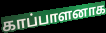
காப்பாளனாக